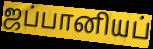
ஜப்பானியப்